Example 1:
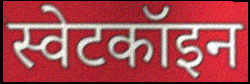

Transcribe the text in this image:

स्वेटकॉइन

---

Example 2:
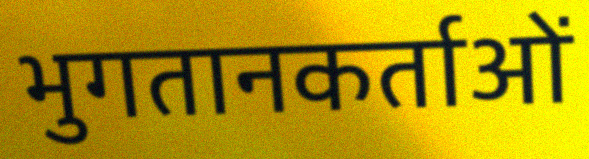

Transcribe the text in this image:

भुगतानकर्ताओं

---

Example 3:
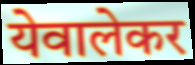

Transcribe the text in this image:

येवालेकर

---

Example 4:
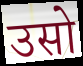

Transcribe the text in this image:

उसो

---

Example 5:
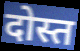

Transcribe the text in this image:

दोस्त